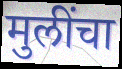
मुलींचा